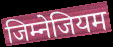
जिम्नेजियम